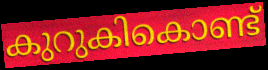
കുറുകികൊണ്ട്